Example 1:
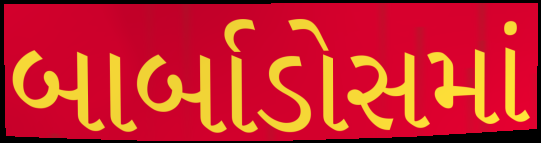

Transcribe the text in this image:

બાર્બાડોસમાં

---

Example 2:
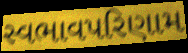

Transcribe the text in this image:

સ્વભાવપરિણામ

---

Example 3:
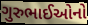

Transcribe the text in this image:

ગુરુભાઈઓનો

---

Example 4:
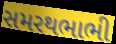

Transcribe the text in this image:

સમરથભાભી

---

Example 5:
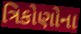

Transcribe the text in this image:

ત્રિકોણોના